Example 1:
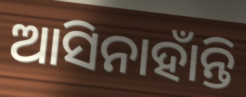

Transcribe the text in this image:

ଆସିନାହାଁନ୍ତି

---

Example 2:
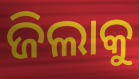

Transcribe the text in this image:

ଜିଲାକୁ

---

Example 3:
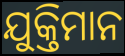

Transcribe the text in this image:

ଯୁକ୍ତିମାନ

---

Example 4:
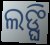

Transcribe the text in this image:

ଲଙ୍ଘି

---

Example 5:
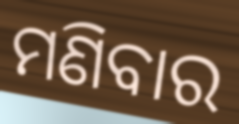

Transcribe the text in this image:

ମଣିବାର